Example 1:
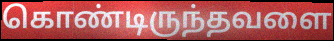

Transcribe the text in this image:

கொண்டிருந்தவளை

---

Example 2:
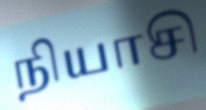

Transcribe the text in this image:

நியாசி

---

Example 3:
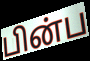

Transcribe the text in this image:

பின்ப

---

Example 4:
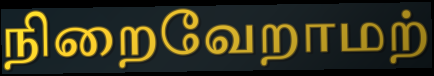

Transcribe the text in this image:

நிறைவேறாமற்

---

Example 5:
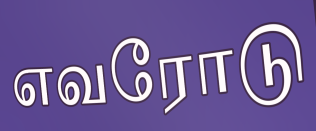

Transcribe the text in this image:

எவரோடு